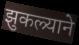
झुकल्याने